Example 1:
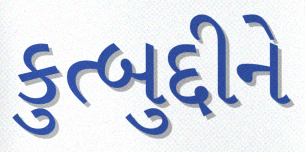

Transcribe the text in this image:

કુત્બુદ્દીને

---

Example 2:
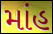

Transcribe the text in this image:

માંહ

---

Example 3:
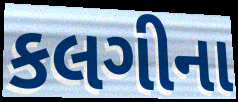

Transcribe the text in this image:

કલગીના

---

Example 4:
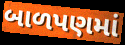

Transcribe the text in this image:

બાળપણમાં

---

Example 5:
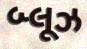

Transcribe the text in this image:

બ્લૂઝ